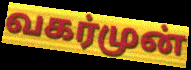
வகர்முன்